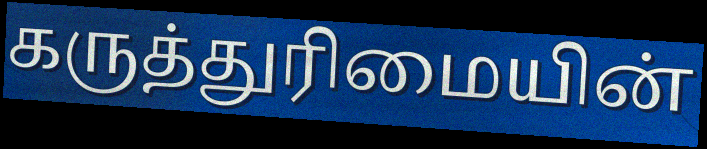
கருத்துரிமையின்